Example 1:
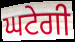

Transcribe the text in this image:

ਘਟੇਗੀ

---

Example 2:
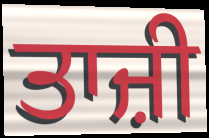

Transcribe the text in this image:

ਤਾਜ਼ੀ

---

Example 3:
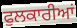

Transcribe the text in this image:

ਫੁਲਕਾਰੀਆਂ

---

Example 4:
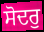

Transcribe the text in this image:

ਸੋਦਰੁ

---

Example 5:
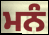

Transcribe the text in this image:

ਮਨੰ